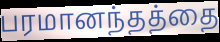
பரமானந்தத்தை